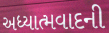
અધ્યાત્મવાદની